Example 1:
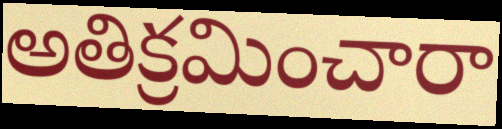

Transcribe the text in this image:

అతిక్రమించారా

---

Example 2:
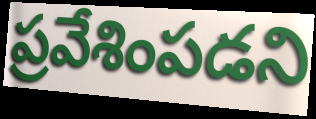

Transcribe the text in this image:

ప్రవేశింపడని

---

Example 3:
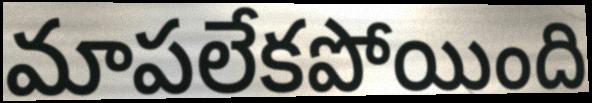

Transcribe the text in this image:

మాపలేకపోయింది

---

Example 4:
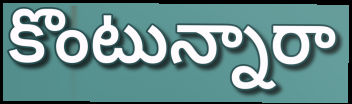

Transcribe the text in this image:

కొంటున్నారా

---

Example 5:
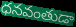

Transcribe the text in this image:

ధనవంతుడా